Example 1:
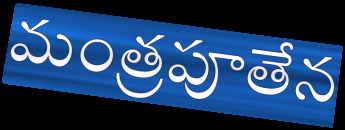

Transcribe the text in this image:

మంత్రపూతేన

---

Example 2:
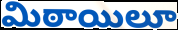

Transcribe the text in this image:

మిఠాయిలూ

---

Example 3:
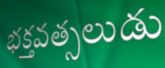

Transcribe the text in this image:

భక్తవత్సలుడు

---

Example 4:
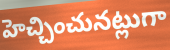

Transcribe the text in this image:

హెచ్చించునట్లుగా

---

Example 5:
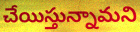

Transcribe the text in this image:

చేయిస్తున్నామని